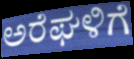
ಅರೆಘಳಿಗೆ